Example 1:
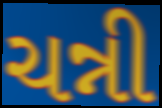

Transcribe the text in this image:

ચન્ની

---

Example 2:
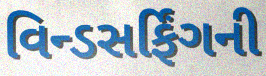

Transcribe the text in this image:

વિન્ડસર્ફિંગની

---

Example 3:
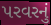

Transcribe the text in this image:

પરવરનું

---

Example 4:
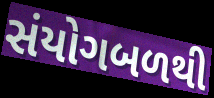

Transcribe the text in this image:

સંયોગબળથી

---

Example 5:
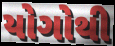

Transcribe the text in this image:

યોગોથી